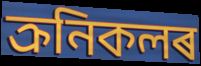
ক্ৰনিকলৰ